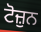
ਟੋਜ਼ੁਨ